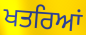
ਖਤਰਿਆਂ